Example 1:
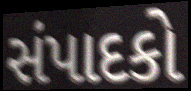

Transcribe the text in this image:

સંપાદકો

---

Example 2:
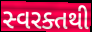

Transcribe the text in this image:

સ્વરક્તથી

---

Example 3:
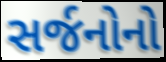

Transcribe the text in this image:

સર્જનોનો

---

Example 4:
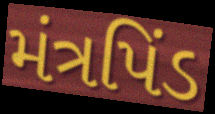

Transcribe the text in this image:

મંત્રપિંડ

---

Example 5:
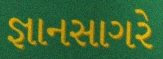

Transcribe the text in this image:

જ્ઞાનસાગરે